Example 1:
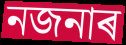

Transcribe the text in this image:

নজনাৰ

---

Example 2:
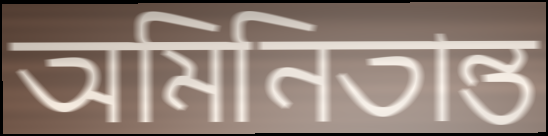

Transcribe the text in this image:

অমিনিতান্ত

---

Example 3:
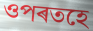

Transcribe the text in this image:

ওপৰতহে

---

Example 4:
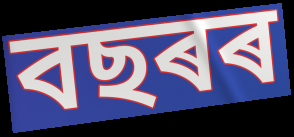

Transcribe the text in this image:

বছৰৰ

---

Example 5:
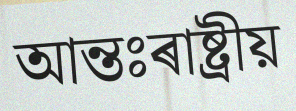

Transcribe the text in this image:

আন্তঃৰাষ্ট্ৰীয়